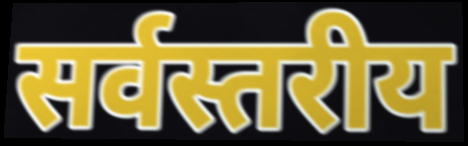
सर्वस्तरीय